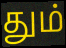
தும்